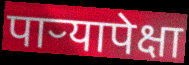
पाऱ्यापेक्षा